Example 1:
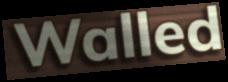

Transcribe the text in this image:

Walled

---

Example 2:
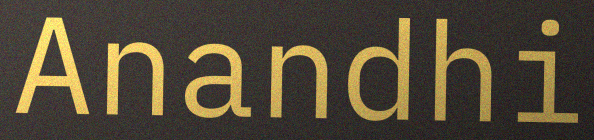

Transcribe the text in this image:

Anandhi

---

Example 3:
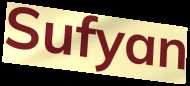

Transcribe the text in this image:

Sufyan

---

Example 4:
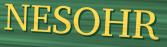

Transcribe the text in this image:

NESOHR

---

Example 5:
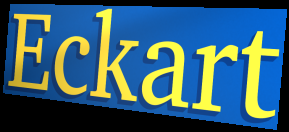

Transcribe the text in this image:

Eckart